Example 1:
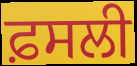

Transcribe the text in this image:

ਫ਼ਸਲੀ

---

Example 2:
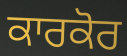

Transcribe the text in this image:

ਕਾਰਕੋਰ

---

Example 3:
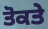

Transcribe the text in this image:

ਤੋਕਤੇ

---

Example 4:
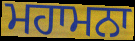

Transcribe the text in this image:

ਮਹਾਮਨਾ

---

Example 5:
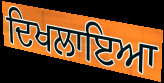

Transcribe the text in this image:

ਦਿਖਲਾਇਆ